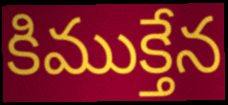
కిముక్తేన